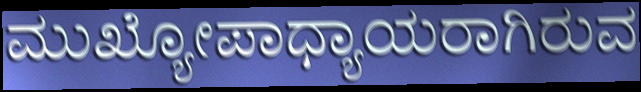
ಮುಖ್ಯೋಪಾಧ್ಯಾಯರಾಗಿರುವ